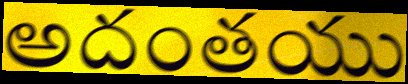
అదంతయు